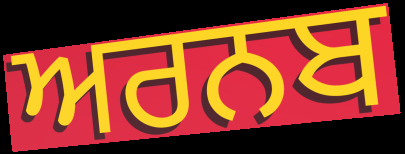
ਅਰਨਬ